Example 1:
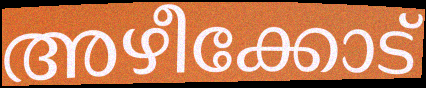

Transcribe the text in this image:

അഴീക്കോട്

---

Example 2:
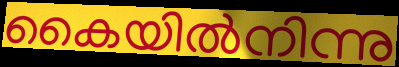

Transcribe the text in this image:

കൈയിൽനിന്നു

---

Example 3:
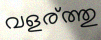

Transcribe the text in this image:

വളര്ത്തു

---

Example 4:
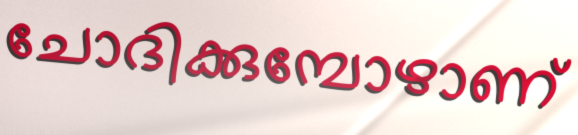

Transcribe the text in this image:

ചോദിക്കുമ്പോഴാണ്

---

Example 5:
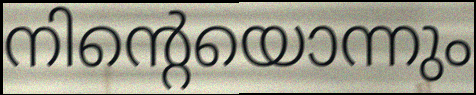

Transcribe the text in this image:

നിന്റെയൊന്നും